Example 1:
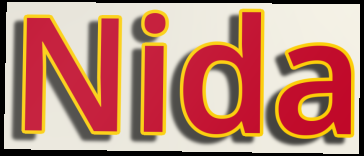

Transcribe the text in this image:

Nida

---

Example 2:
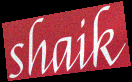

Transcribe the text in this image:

shaik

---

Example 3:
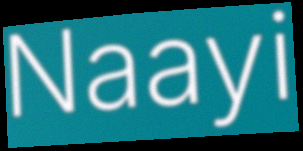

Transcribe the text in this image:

Naayi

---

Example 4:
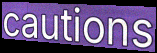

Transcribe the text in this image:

cautions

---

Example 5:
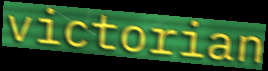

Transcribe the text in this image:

victorian